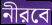
নীরবে